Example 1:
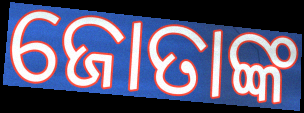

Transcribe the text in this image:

ଜୋତାଙ୍କ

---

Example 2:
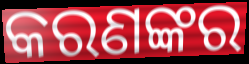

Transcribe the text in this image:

କରଣଙ୍କର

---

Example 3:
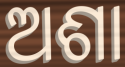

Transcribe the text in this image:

ଅଶା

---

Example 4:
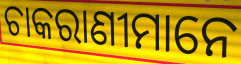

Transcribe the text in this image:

ଚାକରାଣୀମାନେ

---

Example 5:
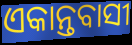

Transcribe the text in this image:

ଏକାନ୍ତବାସୀ